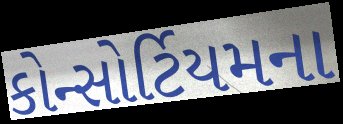
કોન્સોર્ટિયમના